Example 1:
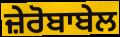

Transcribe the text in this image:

ਜ਼ੇਰੋਬਾਬੇਲ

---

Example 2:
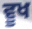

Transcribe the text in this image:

ਵੂਖ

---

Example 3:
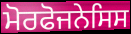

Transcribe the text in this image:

ਮੋਰਫੋਜਨੇਸਿਸ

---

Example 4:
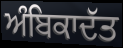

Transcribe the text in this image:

ਅੰਬਿਕਾਦੱਤ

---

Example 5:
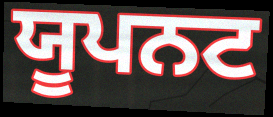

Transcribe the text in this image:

ਯੂਪਨਟ